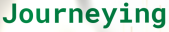
Journeying